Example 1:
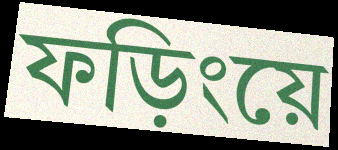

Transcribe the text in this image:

ফড়িংয়ে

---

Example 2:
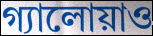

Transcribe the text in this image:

গ্যালোয়াও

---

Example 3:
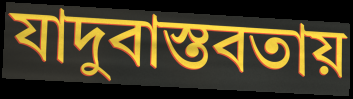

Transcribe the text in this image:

যাদুবাস্তবতায়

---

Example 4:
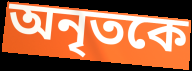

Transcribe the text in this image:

অনৃতকে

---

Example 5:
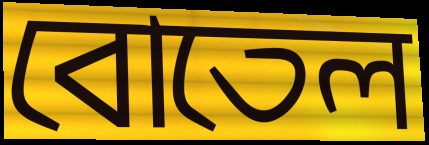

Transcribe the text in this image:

বোতেল